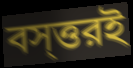
বস্ত্তরই